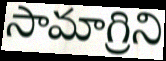
సామాగ్రిని